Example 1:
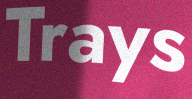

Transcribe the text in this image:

Trays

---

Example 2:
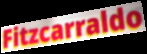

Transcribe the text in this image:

Fitzcarraldo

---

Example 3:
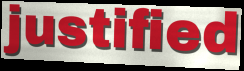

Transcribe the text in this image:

justified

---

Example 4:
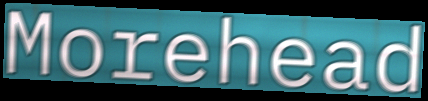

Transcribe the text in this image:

Morehead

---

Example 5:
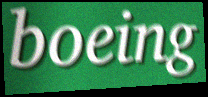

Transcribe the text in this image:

boeing